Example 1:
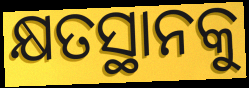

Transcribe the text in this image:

କ୍ଷତସ୍ଥାନକୁ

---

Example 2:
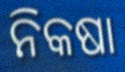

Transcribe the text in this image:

ନିକଷା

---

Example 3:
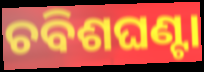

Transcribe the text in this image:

ଚବିଶଘଣ୍ଟା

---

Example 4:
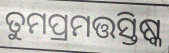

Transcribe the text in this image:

ତୁମପ୍ରମତ୍ତସ୍ତିଷ୍କ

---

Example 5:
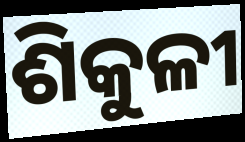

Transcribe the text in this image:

ଶିକୁଳୀ